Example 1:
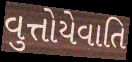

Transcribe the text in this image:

વુત્તોયેવાતિ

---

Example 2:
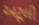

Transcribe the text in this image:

અટૂલી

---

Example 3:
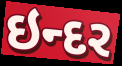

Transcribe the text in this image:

ઇન્દર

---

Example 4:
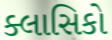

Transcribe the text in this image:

ક્લાસિકો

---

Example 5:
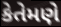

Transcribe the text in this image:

કેતેમણે